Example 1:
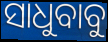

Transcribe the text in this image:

ସାଧୁବାବୁ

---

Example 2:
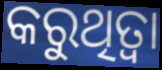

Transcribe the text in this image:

କରୁଥିତ୍ବା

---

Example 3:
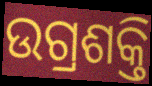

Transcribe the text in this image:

ଉଗ୍ରଶକ୍ତି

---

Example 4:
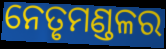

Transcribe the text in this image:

ନେତୃମଣ୍ଡଳର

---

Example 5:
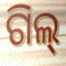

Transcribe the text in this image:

ଗିଲ୍